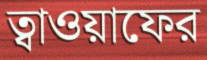
ত্বাওয়াফের